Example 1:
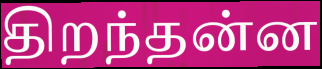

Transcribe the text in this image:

திறந்தன்ன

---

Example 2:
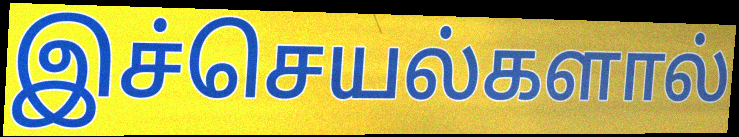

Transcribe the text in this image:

இச்செயல்களால்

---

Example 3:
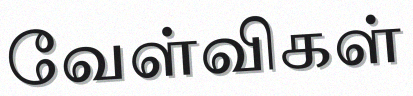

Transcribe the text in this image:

வேள்விகள்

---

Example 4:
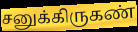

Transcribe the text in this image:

சனுக்கிருகண்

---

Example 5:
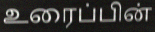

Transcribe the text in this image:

உரைப்பின்